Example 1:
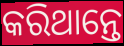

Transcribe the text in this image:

କରିଥାନ୍ତେ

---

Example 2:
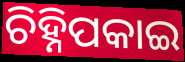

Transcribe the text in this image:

ଚିହ୍ନିପକାଇ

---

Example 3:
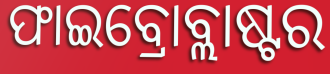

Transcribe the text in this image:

ଫାଇବ୍ରୋବ୍ଲାଷ୍ଟର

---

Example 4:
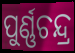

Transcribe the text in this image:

ପୁର୍ଣ୍ଣଚନ୍ଦ୍ର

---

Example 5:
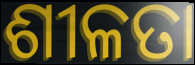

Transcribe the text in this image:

ଶୀଳତା